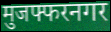
मुजफ्फरनगर